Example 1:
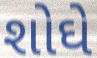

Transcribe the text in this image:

શોઘે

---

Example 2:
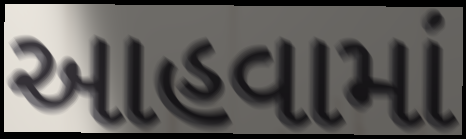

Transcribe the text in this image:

આહવામાં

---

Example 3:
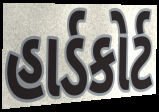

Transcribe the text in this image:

હાર્ડકોર્ટ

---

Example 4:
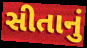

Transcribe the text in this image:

સીતાનું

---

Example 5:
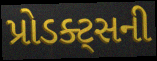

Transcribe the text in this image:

પ્રોડક્ટ્સની